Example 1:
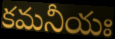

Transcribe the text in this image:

కమనీయః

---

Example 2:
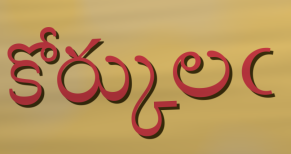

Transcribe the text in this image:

కోర్కులఁ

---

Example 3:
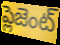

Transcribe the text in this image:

ప్లెజెంట్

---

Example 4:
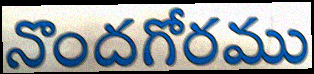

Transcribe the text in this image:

నొందగోరము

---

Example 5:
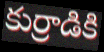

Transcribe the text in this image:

కుర్రాడికి